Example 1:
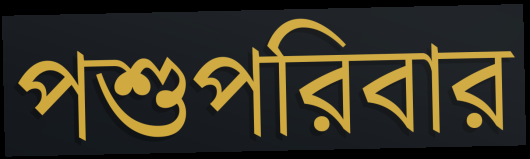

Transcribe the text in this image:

পশুপরিবার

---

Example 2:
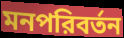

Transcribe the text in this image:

মনপরিবর্তন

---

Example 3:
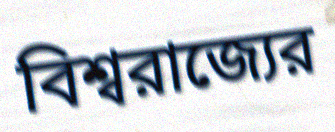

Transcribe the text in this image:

বিশ্বরাজ্যের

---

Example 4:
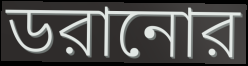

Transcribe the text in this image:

ডরানোর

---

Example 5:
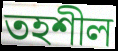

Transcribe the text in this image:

তহশীল